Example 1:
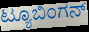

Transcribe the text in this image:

ಟ್ಯೂಬಿಂಗನ್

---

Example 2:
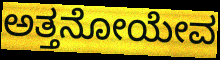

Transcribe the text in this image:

ಅತ್ತನೋಯೇವ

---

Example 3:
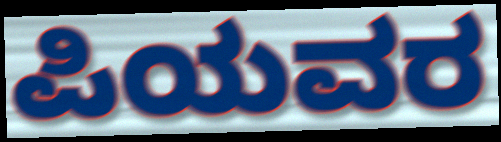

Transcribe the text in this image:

ಪಿಯವರ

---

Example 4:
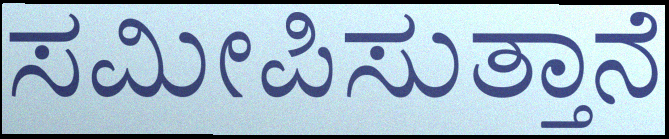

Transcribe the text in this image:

ಸಮೀಪಿಸುತ್ತಾನೆ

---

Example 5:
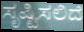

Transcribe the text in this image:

ಸೃಷ್ಟಿಸಲಿದೆ